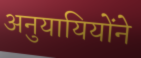
अनुयायियोंने